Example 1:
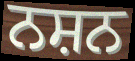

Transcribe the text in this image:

ਨਸ਼ਨ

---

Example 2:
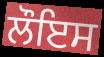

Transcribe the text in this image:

ਲੌਇਸ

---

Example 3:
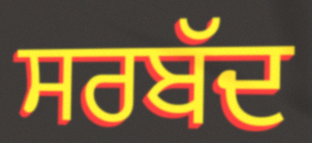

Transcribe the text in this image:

ਸਰਬੱਦ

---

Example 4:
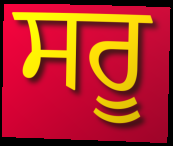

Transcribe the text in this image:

ਸਰੂ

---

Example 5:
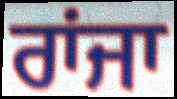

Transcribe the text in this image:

ਰਾਂਜਾ